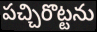
పచ్చిరొట్టను